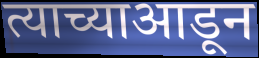
त्याच्याआडून